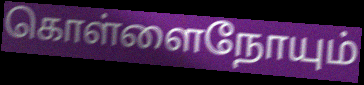
கொள்ளைநோயும்